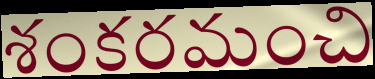
శంకరమంచి